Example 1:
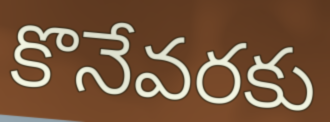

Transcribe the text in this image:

కొనేవరకు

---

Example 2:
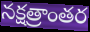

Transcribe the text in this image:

నక్షత్రాంతర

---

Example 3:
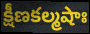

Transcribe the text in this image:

క్షీణకల్మషాః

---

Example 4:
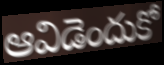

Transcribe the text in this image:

ఆవిడెందుకో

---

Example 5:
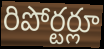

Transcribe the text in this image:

రిపోర్టర్లూ